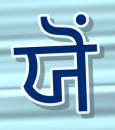
ਯੋਂ